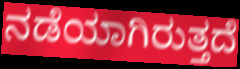
ನಡೆಯಾಗಿರುತ್ತದೆ